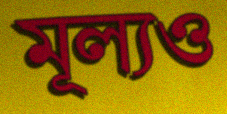
মূল্যও